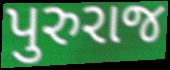
પુરુરાજ